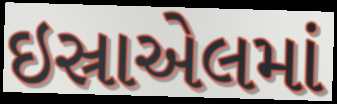
ઇસ્રાએલમાં